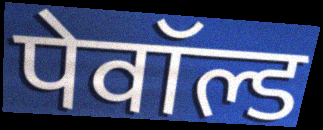
पेवॉल्ड